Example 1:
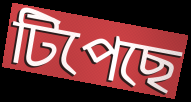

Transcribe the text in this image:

টিপেছে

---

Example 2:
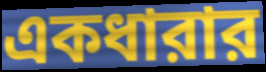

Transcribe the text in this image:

একধারার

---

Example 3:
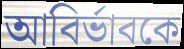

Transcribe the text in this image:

আবির্ভাবকে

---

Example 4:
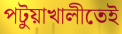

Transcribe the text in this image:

পটুয়াখালীতেই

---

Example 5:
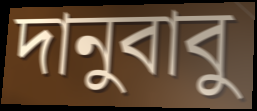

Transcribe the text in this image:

দানুবাবু